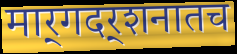
मार्गदर्शनातच